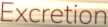
Excretion